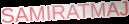
SAMIRATMAJ